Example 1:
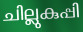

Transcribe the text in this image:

ചില്ലുകുപ്പി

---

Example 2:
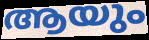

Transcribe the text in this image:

ആയും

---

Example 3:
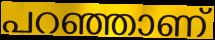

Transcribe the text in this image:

പറഞ്ഞാണ്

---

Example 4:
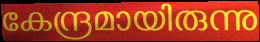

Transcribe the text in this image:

കേന്ദ്രമായിരുന്നു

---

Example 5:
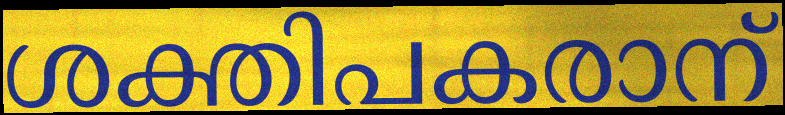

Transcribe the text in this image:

ശക്തിപകരാന്